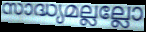
സാദ്ധ്യമല്ലല്ലോ